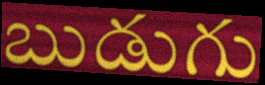
బుడుగు